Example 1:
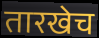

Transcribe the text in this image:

तारखेच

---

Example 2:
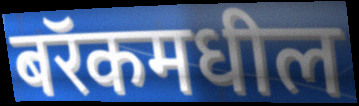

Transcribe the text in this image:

बरॅकमधील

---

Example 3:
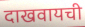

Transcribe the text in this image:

दाखवायची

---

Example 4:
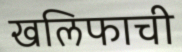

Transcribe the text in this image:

खलिफाची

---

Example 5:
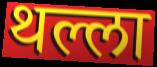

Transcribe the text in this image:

थल्ला